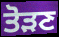
ਤੋੜਣ